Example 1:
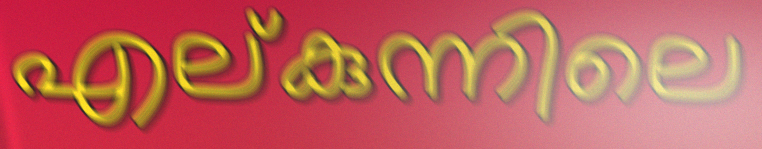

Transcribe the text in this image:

എല്കുന്നിലെ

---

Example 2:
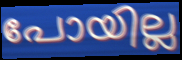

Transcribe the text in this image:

പോയില്ല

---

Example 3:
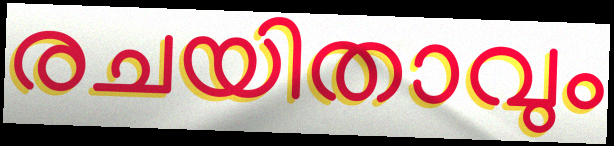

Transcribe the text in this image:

രചയിതാവും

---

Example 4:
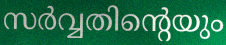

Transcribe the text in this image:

സർവ്വതിന്റെയും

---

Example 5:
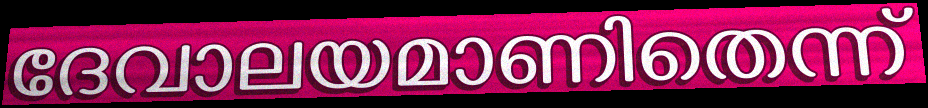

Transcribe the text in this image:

ദേവാലയമാണിതെന്ന്